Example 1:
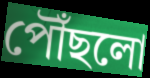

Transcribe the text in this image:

পৌঁছলো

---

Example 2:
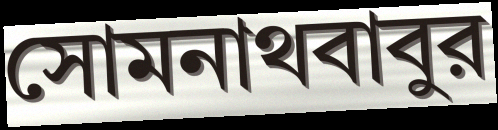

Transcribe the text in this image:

সোমনাথবাবুর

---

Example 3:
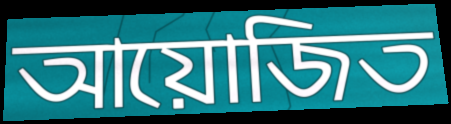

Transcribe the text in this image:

আয়োজিত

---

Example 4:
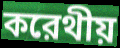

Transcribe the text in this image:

করেথীয়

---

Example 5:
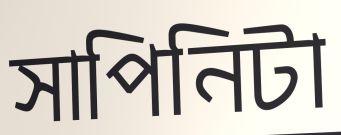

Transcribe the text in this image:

সাপিনিটা